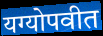
यग्योपवीत